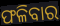
ଫଳିବାର